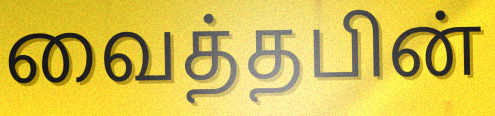
வைத்தபின்